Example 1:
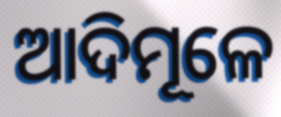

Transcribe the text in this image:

ଆଦିମୂଳେ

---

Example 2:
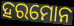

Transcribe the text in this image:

ହରମୋନ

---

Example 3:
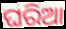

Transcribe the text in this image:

ଘରିଆ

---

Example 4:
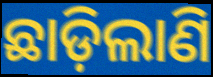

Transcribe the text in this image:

ଛାଡ଼ିଲାଣି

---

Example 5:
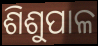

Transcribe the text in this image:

ଶିଶୁପାଳ